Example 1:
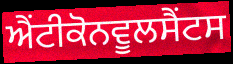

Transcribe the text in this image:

ਐਂਟੀਕੋਨਵੂਲਸੈਂਟਸ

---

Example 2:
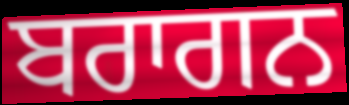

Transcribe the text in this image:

ਬਰਾਗਨ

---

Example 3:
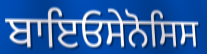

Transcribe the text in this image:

ਬਾਇਓਸੇਨੋਸਿਸ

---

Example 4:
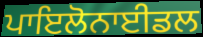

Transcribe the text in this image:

ਪਾਇਲੋਨਾਈਡਲ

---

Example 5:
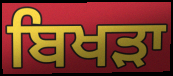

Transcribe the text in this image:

ਬਿਖੜਾ